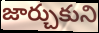
జార్చుకుని